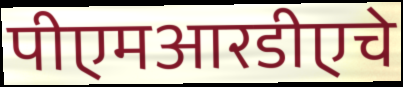
पीएमआरडीएचे